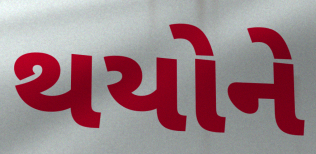
થયોને